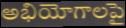
అభియోగాలపై